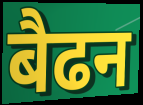
बैढन